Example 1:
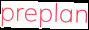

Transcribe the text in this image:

preplan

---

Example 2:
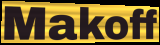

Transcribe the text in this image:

Makoff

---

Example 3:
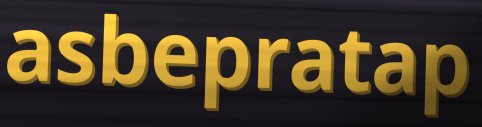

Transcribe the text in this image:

asbepratap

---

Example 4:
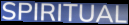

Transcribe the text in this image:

SPIRITUAL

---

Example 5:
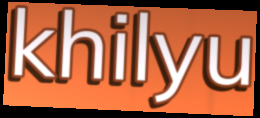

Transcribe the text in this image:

khilyu